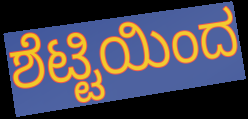
ಶೆಟ್ಟಿಯಿಂದ